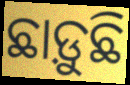
ଛାଡ଼ୁଛି